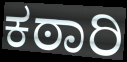
ಕಠಾರಿ